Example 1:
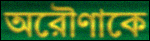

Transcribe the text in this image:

অরৌণাকে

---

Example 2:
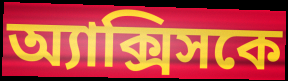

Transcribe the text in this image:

অ্যাক্সিসকে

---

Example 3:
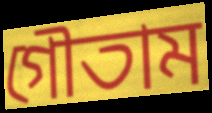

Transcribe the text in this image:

গৌতাম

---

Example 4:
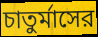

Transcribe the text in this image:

চাতুর্মাসের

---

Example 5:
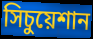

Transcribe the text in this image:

সিচুয়েশান